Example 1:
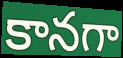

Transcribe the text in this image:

కానగా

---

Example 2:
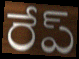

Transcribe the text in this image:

రేప్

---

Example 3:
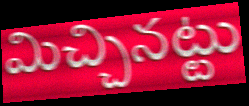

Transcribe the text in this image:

మిచ్చినట్టు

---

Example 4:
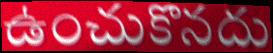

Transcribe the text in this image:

ఉంచుకొనదు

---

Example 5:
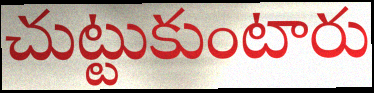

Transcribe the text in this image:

చుట్టుకుంటారు